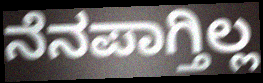
ನೆನಪಾಗ್ತಿಲ್ಲ